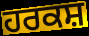
ਹਰਕਸ਼